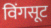
विंगसूट